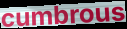
cumbrous